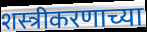
शस्त्रीकरणाच्या